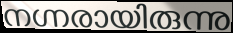
നഗ്നരായിരുന്നു